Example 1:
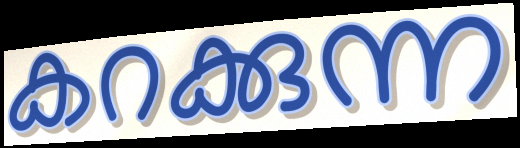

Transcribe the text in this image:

കറക്കുന്ന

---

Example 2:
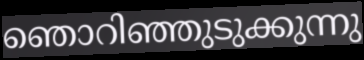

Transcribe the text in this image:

ഞൊറിഞ്ഞുടുക്കുന്നു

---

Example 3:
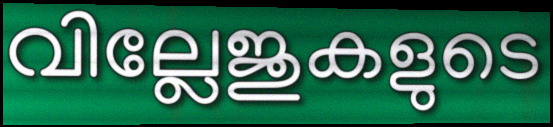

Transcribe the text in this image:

വില്ലേജുകളുടെ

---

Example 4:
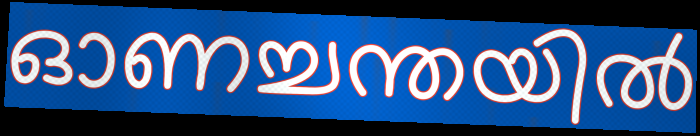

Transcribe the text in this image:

ഓണച്ചന്തയിൽ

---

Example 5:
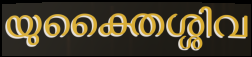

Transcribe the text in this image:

യുക്തൈശ്ശിവ